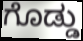
ಗೊಡ್ಡು